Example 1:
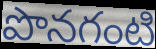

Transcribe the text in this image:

పొనగంటి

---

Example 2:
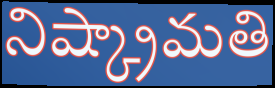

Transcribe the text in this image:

నిష్క్రామతి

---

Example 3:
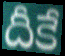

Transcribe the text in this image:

దీకే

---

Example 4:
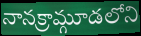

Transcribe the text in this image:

నానక్రామ్గూడలోని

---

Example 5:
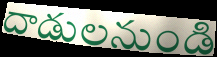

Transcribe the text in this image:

దాడులనుండి